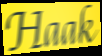
Haak